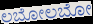
ಲಬೋಲಬೋ